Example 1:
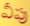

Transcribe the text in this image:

వీపు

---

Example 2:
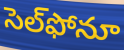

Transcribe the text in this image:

సెల్‌ఫోనూ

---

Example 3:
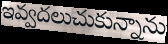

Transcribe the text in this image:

ఇవ్వదలుచుకున్నాను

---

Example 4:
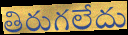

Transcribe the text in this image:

తిరుగలేదు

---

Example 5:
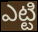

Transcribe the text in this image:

ఎట్టి